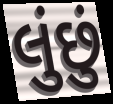
લુંછું